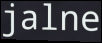
jalne